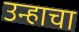
उन्हाचा